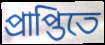
প্রাপ্তিতে